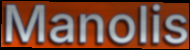
Manolis